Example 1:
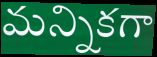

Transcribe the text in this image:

మన్నికగా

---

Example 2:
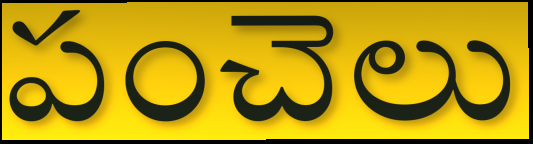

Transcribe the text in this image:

పంచెలు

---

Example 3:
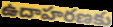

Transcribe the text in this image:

ఉదాహరణకు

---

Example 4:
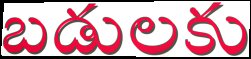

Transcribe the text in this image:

బడులకు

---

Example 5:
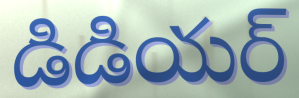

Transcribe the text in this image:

డిడియర్